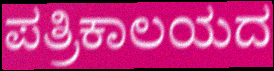
ಪತ್ರಿಕಾಲಯದ